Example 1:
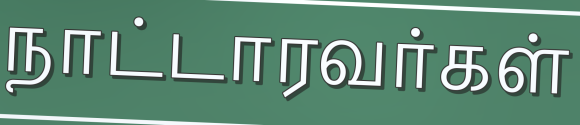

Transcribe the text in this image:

நாட்டாரவர்கள்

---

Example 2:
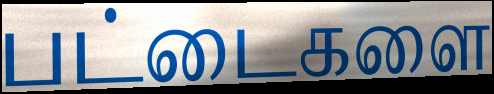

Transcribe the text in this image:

பட்டைகளை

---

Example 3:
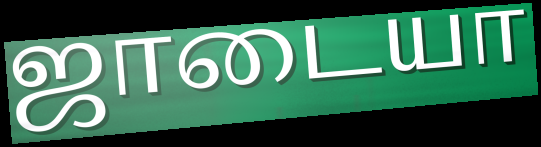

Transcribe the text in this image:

ஜாடையா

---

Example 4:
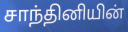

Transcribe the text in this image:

சாந்தினியின்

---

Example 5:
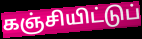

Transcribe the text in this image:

கஞ்சியிட்டுப்